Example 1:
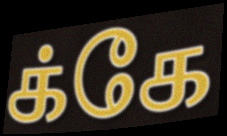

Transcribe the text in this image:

க்கே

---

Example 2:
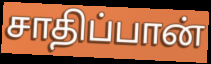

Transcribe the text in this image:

சாதிப்பான்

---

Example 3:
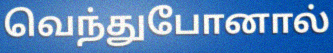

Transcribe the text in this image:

வெந்துபோனால்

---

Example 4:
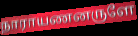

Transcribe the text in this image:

நாராயணனருளே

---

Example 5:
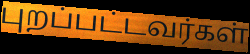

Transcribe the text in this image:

புறப்பட்டவர்கள்